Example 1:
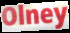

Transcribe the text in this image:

Olney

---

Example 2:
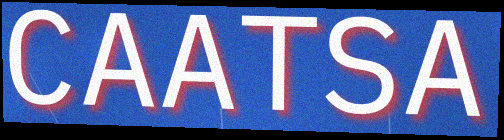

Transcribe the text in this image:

CAATSA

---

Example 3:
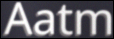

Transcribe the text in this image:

Aatm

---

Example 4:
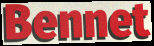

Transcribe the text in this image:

Bennet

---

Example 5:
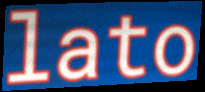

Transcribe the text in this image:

lato